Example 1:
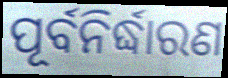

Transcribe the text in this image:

ପୂର୍ବନିର୍ଦ୍ଧାରଣ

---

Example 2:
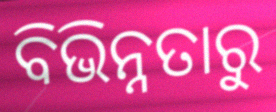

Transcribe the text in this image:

ବିଭିନ୍ନତାରୁ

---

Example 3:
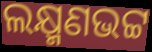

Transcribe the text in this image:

ଲକ୍ଷ୍ମଣଭଟ୍ଟ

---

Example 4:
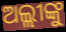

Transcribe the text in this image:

ଅଲ୍ଲୀଙ୍କୁ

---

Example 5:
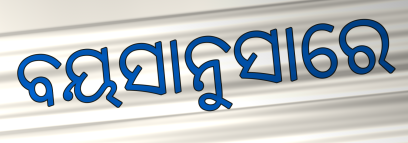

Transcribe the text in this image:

ବୟସାନୁସାରେ